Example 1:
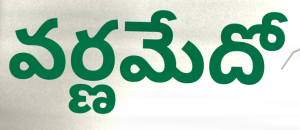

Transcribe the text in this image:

వర్ణమేదో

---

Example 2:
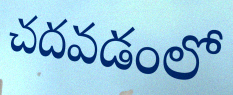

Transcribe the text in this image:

చదవడంలో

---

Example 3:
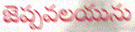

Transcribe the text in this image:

జెప్పవలయును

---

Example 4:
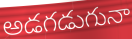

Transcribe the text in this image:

అడగడుగునా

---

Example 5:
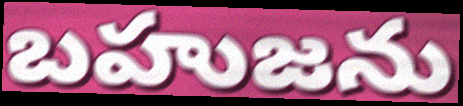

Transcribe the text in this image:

బహుజను